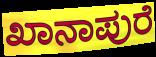
ಖಾನಾಪುರೆ